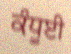
ਕੰਧੂਈ